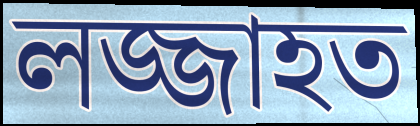
লজ্জাহত